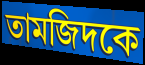
তামজিদকে